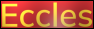
Eccles